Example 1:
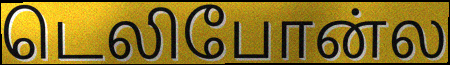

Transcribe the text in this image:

டெலிபோன்ல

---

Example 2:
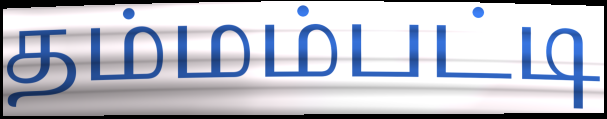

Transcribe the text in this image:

தம்மம்பட்டி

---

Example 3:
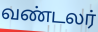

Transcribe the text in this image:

வண்டலர்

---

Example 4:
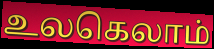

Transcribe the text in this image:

உலகெலாம்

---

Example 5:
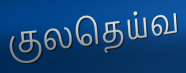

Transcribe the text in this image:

குலதெய்வ